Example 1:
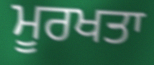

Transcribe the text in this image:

ਮੂਰਖਤਾ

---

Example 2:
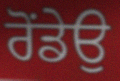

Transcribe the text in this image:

ਰੋਂਡੇਉ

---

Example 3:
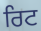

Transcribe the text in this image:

ਰਿਟ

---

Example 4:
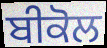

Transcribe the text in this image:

ਬੀਕੋਲ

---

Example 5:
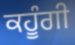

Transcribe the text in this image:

ਕਹੂੰਗੀ